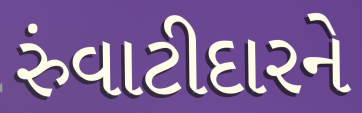
રુંવાટીદારને